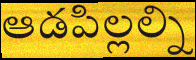
ఆడపిల్లల్ని